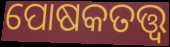
ପୋଷକତତ୍ତ୍ବ